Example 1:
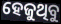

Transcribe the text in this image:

ହେଜୁଥିବୁ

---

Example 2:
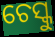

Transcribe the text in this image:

ଚେସ୍କୁ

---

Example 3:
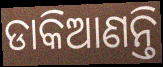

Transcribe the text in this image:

ଡାକିଆଣନ୍ତି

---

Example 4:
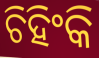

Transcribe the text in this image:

ଚିହିଂକି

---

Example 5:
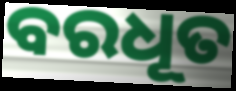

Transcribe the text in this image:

ବରଧୂତ